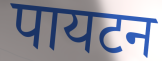
पायटन